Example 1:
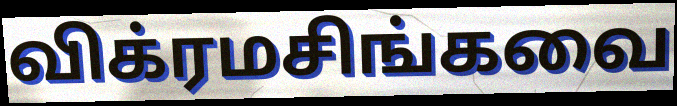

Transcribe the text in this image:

விக்ரமசிங்கவை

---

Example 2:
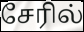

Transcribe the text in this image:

சேரில்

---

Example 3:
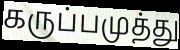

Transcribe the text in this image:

கருப்பமுத்து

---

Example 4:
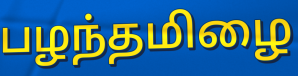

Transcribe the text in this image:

பழந்தமிழை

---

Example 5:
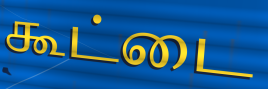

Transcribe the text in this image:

கூட்டை